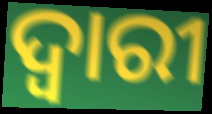
ଦ୍ଵାରୀ